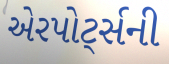
એરપોર્ટ્સની